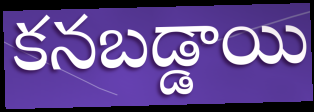
కనబడ్డాయి